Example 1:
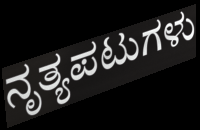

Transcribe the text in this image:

ನೃತ್ಯಪಟುಗಳು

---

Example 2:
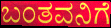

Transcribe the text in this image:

ಬಂತವನಿಗೆ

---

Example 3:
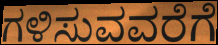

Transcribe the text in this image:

ಗಳಿಸುವವರೆಗೆ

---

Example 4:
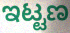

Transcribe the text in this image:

ಇಟ್ಟಣ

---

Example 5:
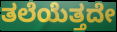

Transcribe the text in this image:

ತಲೆಯೆತ್ತದೇ